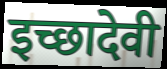
इच्छादेवी